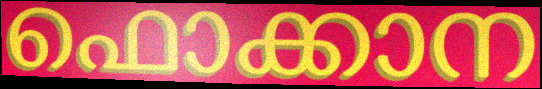
ഫൊക്കാന